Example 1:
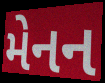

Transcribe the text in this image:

મેનન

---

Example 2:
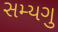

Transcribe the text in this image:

સમ્યગુ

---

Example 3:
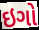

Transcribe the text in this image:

ઇગો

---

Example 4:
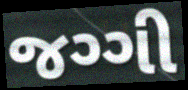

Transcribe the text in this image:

જગ્ગી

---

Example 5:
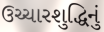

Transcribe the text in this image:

ઉચ્ચારશુદ્ધિનું